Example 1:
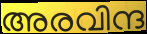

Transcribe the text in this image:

അരവിന്ദ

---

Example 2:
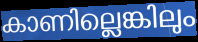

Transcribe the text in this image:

കാണില്ലെങ്കിലും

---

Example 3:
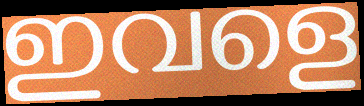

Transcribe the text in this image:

ഇവളെ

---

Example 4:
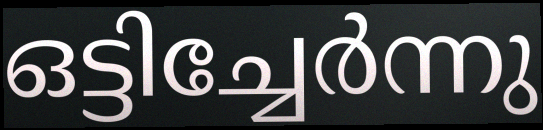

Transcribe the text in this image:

ഒട്ടിച്ചേർന്നു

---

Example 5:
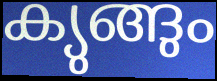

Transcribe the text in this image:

ക്യുങ്ങും